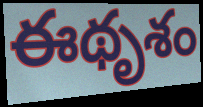
ఈథృశం